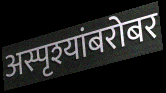
अस्पृश्यांबरोबर